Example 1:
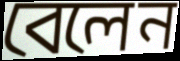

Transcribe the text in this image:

বেলেন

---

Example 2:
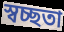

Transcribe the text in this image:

স্বচ্ছতা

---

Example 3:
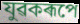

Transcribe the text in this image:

যুৱকৰূপে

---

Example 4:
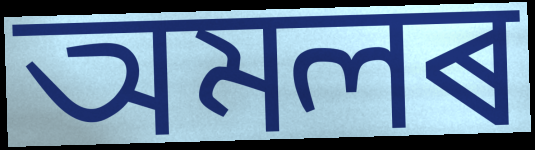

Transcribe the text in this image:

অমলৰ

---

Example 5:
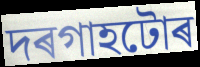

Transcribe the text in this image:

দৰগাহটোৰ